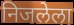
निजलेला